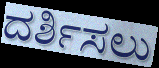
ದರ್ಶಿಸಲು